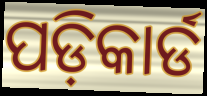
ପଡ଼ିକାର୍ଡ